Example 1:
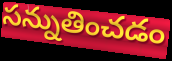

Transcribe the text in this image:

సన్నుతించడం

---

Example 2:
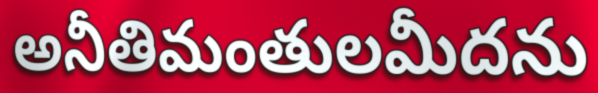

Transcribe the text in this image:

అనీతిమంతులమీదను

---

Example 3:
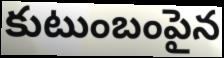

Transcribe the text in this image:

కుటుంబంపైన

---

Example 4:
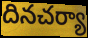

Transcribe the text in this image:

దినచర్యా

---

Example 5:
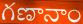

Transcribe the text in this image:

గణానాం